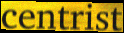
centrist